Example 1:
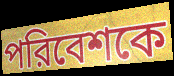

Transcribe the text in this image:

পরিবেশকে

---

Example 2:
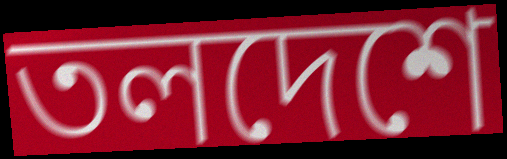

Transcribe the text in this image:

তলদেশে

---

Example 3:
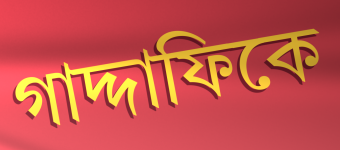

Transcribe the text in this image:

গাদ্দাফিকে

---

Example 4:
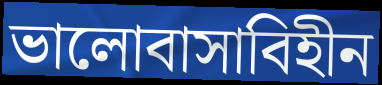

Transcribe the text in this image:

ভালোবাসাবিহীন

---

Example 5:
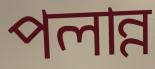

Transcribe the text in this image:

পলান্ন